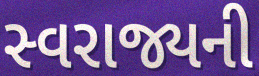
સ્વરાજ્યની